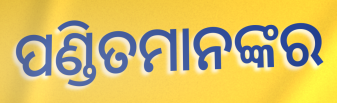
ପଣ୍ଡିତମାନଙ୍କର